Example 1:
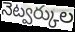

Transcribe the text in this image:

నెట్వర్కుల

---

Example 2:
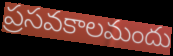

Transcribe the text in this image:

ప్రసవకాలమందు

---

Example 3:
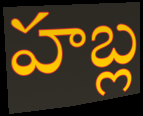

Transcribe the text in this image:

హబ్ల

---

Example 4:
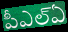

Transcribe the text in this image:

పీఎల్ఏ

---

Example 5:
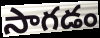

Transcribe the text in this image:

సాగడం